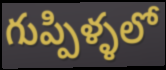
గుప్పిళ్ళలో